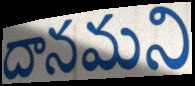
దానమని